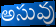
అసువు